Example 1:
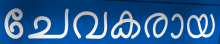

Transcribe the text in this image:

ചേവകരായ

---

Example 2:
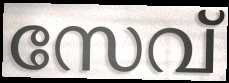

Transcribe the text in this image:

സേവ്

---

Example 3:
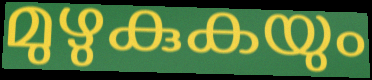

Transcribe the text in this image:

മുഴുകുകയും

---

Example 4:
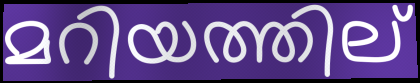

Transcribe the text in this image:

മറിയത്തില്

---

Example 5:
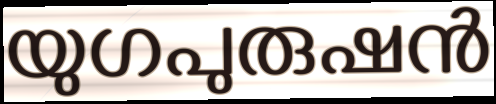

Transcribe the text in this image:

യുഗപുരുഷൻ